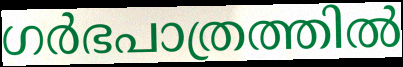
ഗർഭപാത്രത്തിൽ